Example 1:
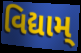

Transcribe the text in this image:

વિદ્યામ્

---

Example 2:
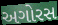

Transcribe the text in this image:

અગોરસ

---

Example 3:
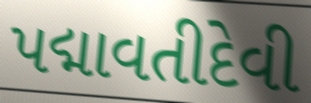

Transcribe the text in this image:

પદ્માવતીદેવી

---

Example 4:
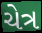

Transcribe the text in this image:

ચેત્ર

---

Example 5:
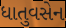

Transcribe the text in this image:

ધાતુવસેન